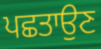
ਪਛਤਾਉਣ